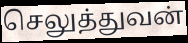
செலுத்துவன்